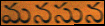
మనసున